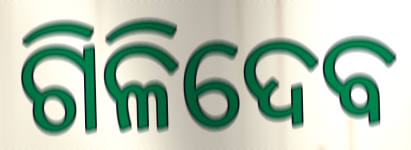
ଗିଳିଦେବ